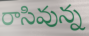
రాసివున్న